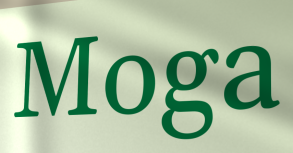
Moga